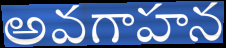
అవగాహన